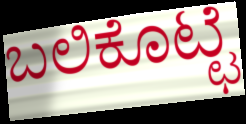
ಬಲಿಕೊಟ್ಟೆ